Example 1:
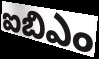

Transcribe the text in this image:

ఐబిఎం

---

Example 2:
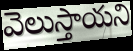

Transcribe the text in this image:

వెలుస్తాయని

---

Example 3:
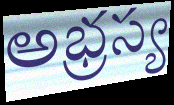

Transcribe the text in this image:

అభ్రస్య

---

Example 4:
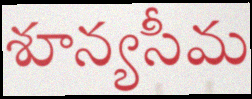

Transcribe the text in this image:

శూన్యసీమ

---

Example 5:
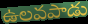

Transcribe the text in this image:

ఉలవపాడు